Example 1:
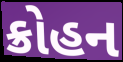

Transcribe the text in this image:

ક્રોહન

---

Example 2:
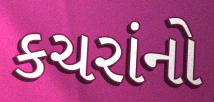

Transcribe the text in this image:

કચરાંનો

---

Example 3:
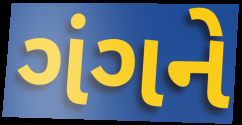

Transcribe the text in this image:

ગંગને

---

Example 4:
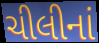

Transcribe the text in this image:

ચીલીનાં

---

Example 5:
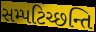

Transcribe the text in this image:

સમ્પટિચ્છન્તિ